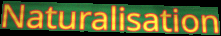
Naturalisation